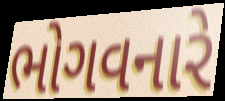
ભોગવનારે